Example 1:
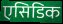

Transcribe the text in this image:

एसिडिक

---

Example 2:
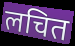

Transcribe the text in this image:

लचित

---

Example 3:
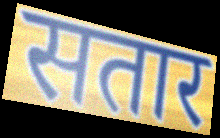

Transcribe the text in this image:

सतार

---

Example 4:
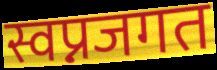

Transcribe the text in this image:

स्वप्नजगत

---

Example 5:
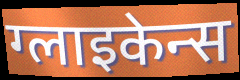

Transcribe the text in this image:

ग्लाइकेन्स